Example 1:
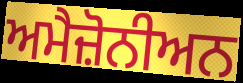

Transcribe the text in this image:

ਅਮੈਜ਼ੋਨੀਅਨ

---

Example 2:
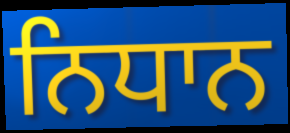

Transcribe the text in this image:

ਨਿਧਾਨ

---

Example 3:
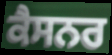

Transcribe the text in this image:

ਕੈਸਨਰ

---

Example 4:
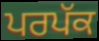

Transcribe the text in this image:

ਪਰਪੱਕ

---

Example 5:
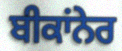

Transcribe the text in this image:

ਬੀਕਾਂਨੇਰ